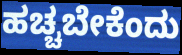
ಹಚ್ಚಬೇಕೆಂದು